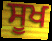
ਸੂਖ